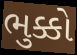
ભુક્કો